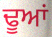
ਢੂਆਂ